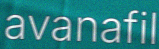
avanafil